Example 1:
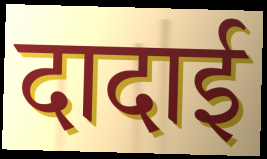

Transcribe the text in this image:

दादाई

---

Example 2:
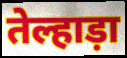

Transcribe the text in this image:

तेल्हाड़ा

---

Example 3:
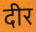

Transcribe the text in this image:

दीर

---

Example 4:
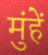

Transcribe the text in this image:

मुंहें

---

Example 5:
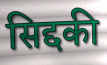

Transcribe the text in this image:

सिद्दकी